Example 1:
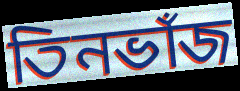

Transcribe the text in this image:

তিনভাঁজ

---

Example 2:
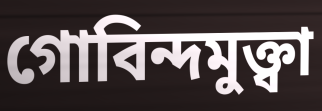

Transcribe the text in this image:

গোবিন্দমুক্ত্বা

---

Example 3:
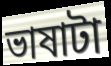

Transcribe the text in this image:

ভাষাটা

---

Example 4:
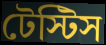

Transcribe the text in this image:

টেস্টিস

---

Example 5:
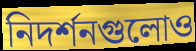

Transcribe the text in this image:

নিদর্শনগুলোও